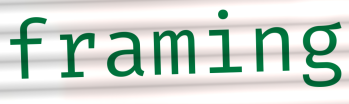
framing